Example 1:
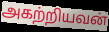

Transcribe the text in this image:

அகற்றியவன்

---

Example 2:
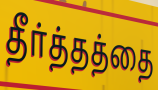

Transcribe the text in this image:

தீர்த்தத்தை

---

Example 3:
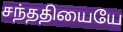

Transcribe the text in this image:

சந்ததியையே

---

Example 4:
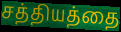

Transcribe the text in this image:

சத்தியத்தை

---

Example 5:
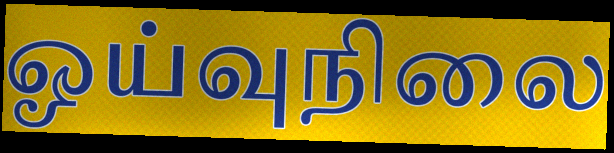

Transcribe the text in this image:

ஓய்வுநிலை